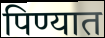
पिण्यात